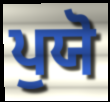
ਪੁਯੋ